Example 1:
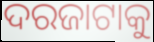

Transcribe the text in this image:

ଦରଜାଟାକୁ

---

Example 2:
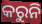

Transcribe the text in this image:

କରୁନି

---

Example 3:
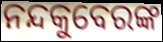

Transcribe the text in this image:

ନନ୍ଦକୁବେରଙ୍କ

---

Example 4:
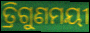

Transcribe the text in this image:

ତ୍ରିଗୁଣମୟୀ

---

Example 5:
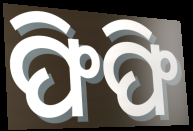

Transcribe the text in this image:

ଫିଫି